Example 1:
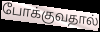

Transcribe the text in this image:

போக்குவதால்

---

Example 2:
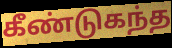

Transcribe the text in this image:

கீண்டுகந்த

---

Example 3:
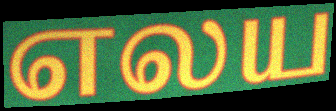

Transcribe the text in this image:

எலய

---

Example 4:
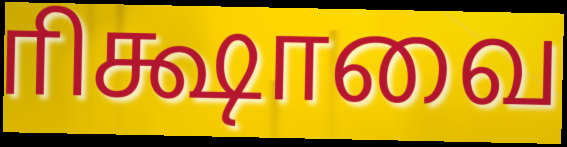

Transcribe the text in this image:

ரிக்ஷாவை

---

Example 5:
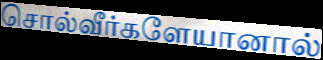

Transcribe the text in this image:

சொல்வீர்களேயானால்